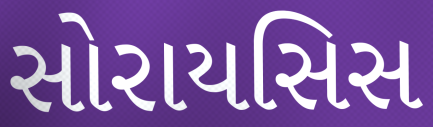
સોરાયસિસ